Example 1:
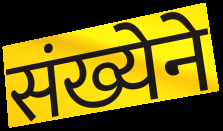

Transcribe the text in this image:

संख्येने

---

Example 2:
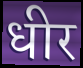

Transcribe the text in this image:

धीर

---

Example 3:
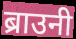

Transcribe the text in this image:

ब्राउनी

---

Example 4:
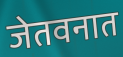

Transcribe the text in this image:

जेतवनात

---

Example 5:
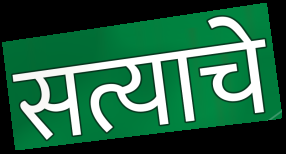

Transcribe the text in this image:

सत्याचे